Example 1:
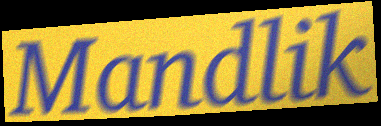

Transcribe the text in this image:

Mandlik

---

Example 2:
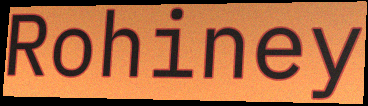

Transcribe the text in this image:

Rohiney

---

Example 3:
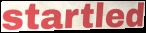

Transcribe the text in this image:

startled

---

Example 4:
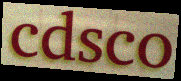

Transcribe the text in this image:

cdsco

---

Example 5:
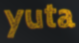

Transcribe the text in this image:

yuta